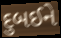
દુબઈને